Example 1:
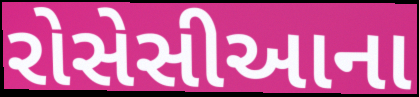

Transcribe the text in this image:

રોસેસીઆના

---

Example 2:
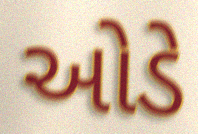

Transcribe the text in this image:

ઓડે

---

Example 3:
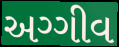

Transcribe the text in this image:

અગ્ગીવ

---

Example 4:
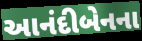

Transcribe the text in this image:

આનંદીબેનના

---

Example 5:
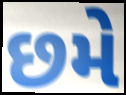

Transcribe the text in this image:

છમે